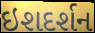
ઇશદર્શન